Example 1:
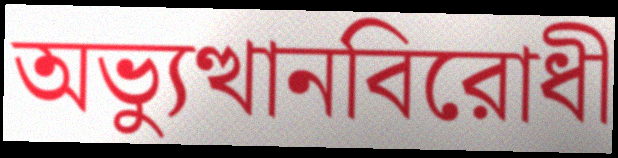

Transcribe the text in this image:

অভ্যুত্থানবিরোধী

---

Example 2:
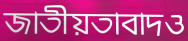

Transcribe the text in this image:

জাতীয়তাবাদও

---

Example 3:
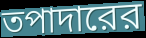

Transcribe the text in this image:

তপাদারের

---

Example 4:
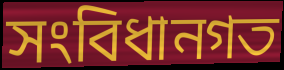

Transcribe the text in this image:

সংবিধানগত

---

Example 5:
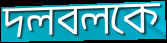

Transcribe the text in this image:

দলবলকে